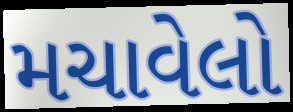
મચાવેલો